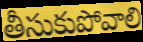
తీసుకుపోవాలి